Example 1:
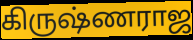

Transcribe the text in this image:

கிருஷ்ணராஜ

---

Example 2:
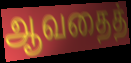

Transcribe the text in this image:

ஆவதைத்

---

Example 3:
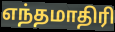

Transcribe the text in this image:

எந்தமாதிரி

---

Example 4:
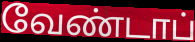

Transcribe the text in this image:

வேண்டாப்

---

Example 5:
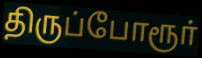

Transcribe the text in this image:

திருப்போரூர்